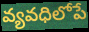
వ్యవధిలోపే